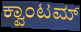
ಕ್ವಾಂಟಮ್